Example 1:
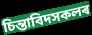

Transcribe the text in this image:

চিন্তাবিদসকলৰ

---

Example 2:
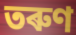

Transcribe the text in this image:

তৰুণ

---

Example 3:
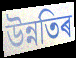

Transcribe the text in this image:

উন্নতিৰ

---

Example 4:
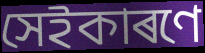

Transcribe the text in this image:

সেইকাৰণে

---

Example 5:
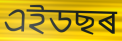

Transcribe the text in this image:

এইডছৰ